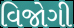
વિજોગી